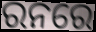
ରନରେ